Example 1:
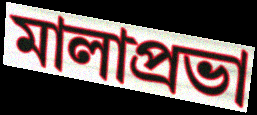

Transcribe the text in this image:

মালাপ্রভা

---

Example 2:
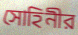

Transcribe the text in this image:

সোহিনীর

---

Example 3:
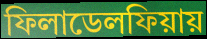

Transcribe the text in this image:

ফিলাডেলফিয়ায়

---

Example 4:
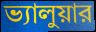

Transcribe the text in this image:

ভ্যালুয়ার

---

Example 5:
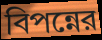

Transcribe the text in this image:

বিপন্নের